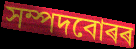
সম্পদবোৰৰ